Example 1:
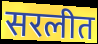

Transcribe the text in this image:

सरलीत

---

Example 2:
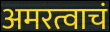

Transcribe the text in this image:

अमरत्वाचं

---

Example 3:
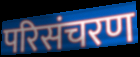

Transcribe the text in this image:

परिसंचरण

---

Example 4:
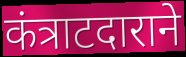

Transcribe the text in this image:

कंत्राटदाराने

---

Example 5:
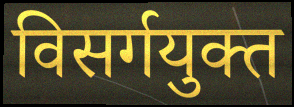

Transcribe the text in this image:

विसर्गयुक्त